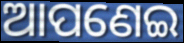
ଆପଣେଇ